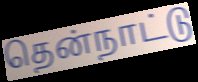
தென்நாட்டு